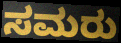
ಸಮರು